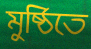
মুষ্ঠিতে